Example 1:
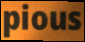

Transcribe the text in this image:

pious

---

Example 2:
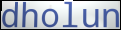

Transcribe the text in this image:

dholun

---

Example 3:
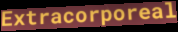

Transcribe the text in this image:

Extracorporeal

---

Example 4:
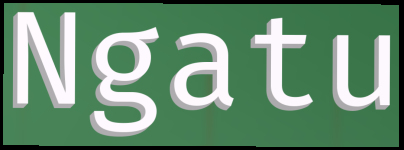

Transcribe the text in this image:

Ngatu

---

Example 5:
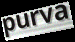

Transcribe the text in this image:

purva